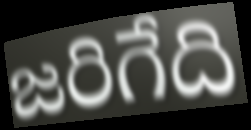
జరిగేది